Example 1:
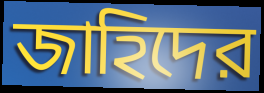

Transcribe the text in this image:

জাহিদের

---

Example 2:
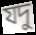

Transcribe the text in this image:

যদু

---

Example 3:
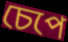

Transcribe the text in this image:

চেপে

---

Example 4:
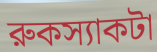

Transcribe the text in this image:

রুকস্যাকটা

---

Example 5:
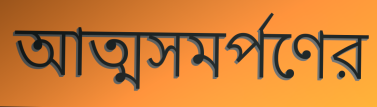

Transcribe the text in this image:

আত্মসমর্পণের